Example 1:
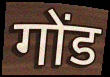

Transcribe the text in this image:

गोंड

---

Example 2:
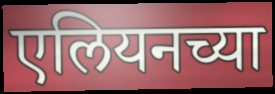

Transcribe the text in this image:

एलियनच्या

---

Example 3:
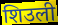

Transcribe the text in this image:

शिउली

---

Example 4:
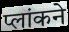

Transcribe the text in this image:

प्लांकने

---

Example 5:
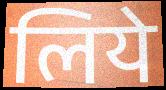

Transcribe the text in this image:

लिये